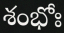
శంభోః